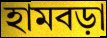
হামবড়া